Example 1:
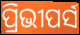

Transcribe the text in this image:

ପ୍ରିଭୀପର୍ସ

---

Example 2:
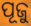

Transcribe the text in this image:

ପୂଜୁ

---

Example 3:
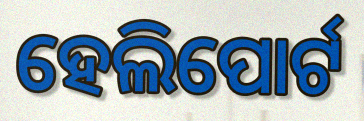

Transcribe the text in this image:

ହେଲିପୋର୍ଟ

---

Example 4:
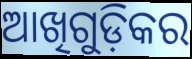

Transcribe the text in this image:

ଆଖିଗୁଡ଼ିକର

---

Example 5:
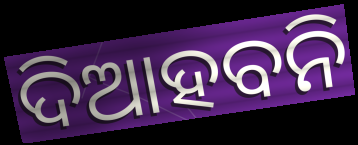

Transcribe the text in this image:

ଦିଆହବନି